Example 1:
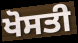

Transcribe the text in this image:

ਖੋਸਤੀ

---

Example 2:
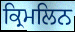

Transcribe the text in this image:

ਕ੍ਰਿਮਲਿਨ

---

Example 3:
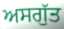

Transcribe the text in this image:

ਅਸਗੁੱਤ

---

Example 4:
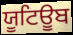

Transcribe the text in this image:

ਯੂਟਿਊਬ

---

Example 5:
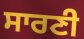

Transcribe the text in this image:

ਸਾਰਣੀ